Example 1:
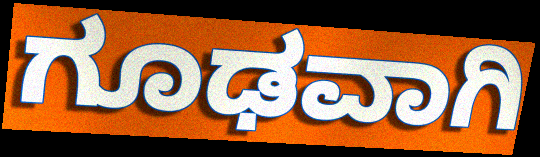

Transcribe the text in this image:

ಗೂಢವಾಗಿ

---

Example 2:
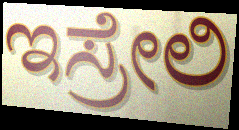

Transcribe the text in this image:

ಇಸ್ರೇಲಿ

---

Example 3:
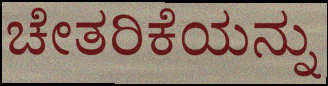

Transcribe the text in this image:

ಚೇತರಿಕೆಯನ್ನು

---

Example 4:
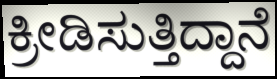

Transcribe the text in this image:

ಕ್ರೀಡಿಸುತ್ತಿದ್ದಾನೆ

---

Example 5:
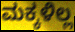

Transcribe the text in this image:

ಮಕ್ಕಳಿಲ್ಲ